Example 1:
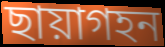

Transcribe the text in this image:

ছায়াগহন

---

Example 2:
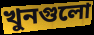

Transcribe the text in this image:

খুনগুলো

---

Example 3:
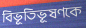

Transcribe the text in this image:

বিভূতিভূষণকে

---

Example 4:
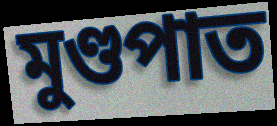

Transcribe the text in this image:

মুণ্ডপাত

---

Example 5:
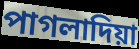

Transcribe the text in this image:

পাগলাদিয়া